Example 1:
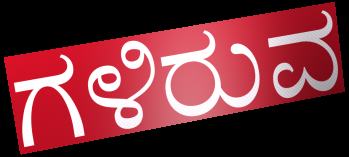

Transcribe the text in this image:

ಗಳಿರುವ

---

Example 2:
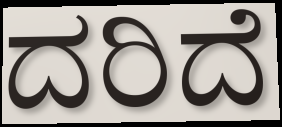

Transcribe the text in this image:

ದರಿದೆ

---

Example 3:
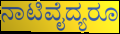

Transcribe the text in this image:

ನಾಟಿವೈದ್ಯರೂ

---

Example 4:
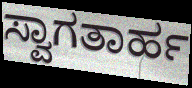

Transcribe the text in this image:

ಸ್ವಾಗತಾರ್ಹ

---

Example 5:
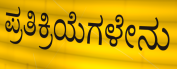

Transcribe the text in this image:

ಪ್ರತಿಕ್ರಿಯೆಗಳೇನು